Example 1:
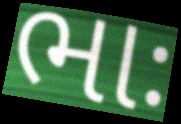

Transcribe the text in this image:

ભાઃ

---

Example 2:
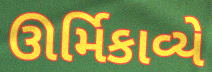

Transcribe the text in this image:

ઊર્મિકાવ્યે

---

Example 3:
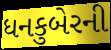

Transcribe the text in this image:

ધનકુબેરની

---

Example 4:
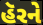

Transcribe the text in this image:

હૅરને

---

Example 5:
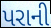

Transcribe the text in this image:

પરાની